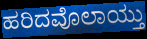
ಹರಿದವೊಲಾಯ್ತು